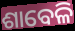
ଶାବେଳି